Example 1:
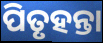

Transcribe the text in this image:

ପିତୃହନ୍ତା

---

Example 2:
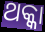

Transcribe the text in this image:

ଥକ୍କା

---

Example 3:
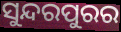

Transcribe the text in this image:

ସୁନ୍ଦରପୁରର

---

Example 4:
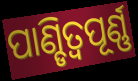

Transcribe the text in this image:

ପାଣ୍ଡିତ୍ୱପୂର୍ଣ୍ଣ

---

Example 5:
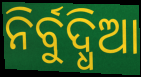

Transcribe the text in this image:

ନିର୍ବୁଦ୍ଧିଆ